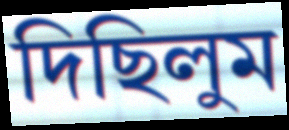
দিছিলুম